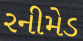
રનીમેડ